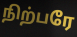
நிற்பரே